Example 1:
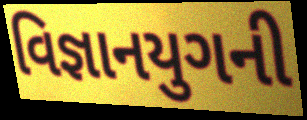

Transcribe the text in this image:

વિજ્ઞાનયુગની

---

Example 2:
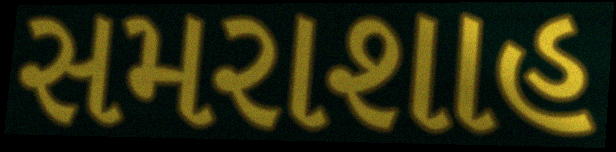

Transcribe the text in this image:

સમરાશાહ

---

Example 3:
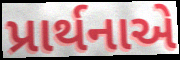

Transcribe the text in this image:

પ્રાર્થનાએ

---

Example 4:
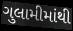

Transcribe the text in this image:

ગુલામીમાંથી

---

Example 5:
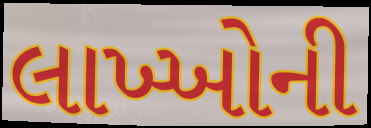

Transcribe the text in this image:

લાખ્ખોની